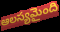
ఆలస్యమైంది